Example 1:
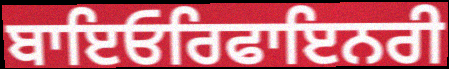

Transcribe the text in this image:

ਬਾਇਓਰਿਫਾਇਨਰੀ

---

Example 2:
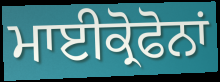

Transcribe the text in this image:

ਮਾਈਕ੍ਰੋਫੋਨਾਂ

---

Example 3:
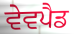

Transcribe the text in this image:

ਵੇਵਪੈਡ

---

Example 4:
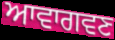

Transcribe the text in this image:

ਆਵਾਗਵਣ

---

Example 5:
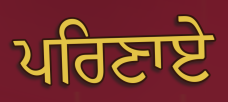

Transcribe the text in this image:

ਪਰਿਣਾਏ